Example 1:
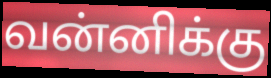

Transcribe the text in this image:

வன்னிக்கு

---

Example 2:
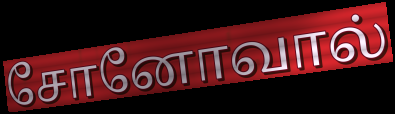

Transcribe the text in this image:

சோனோவால்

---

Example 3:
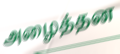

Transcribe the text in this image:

அழைத்தன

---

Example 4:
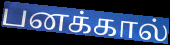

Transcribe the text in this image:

பனக்கால்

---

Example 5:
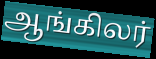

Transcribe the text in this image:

ஆங்கிலர்